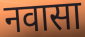
नवासा